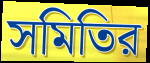
সমিতির